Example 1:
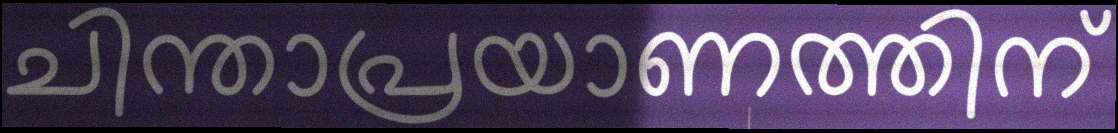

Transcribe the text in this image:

ചിന്താപ്രയാണത്തിന്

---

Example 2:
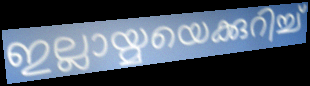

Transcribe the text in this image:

ഇല്ലായ്മയെക്കുറിച്ച്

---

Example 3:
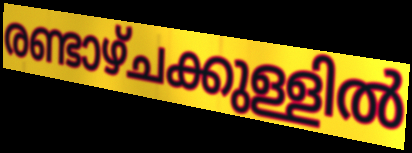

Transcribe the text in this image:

രണ്ടാഴ്ചക്കുള്ളിൽ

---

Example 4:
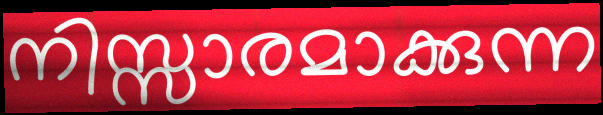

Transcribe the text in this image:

നിസ്സാരമാക്കുന്ന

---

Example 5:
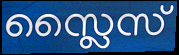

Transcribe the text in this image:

സ്ലൈസ്